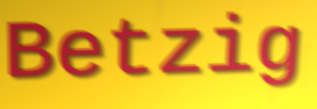
Betzig